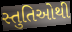
સ્તુતિઓથી